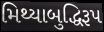
મિથ્યાબુદ્ધિરૂપ